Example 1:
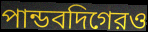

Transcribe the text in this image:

পান্ডবদিগেরও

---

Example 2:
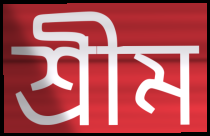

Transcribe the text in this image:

শ্রীম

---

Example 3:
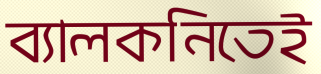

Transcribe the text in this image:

ব্যালকনিতেই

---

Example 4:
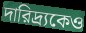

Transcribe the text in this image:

দারিদ্র্যকেও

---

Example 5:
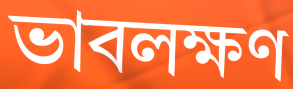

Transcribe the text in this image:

ভাবলক্ষণ